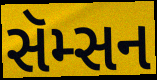
સૅમ્સન